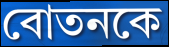
বোতনকে